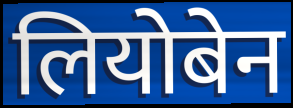
लियोबेन